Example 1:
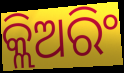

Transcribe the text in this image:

କ୍ଲିଅରିଂ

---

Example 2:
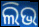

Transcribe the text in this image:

ଲିଭ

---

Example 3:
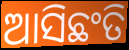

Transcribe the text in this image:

ଆସିଛଂତି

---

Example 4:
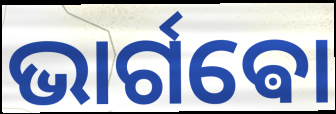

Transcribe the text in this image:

ଭାର୍ଗଵୋ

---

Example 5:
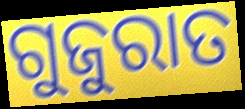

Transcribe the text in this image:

ଗୁଜୁରାତ